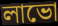
লাভো